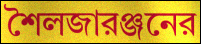
শৈলজারঞ্জনের